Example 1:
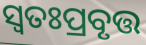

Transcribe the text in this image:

ସ୍ୱତଃପ୍ରବୃତ୍ତ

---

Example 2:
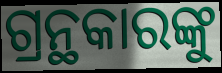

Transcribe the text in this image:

ଗ୍ରନ୍ଥକାରଙ୍କୁ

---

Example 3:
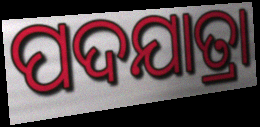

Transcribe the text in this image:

ପଦଯାତ୍ରା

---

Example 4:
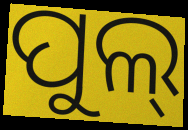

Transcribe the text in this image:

ପୁଲ୍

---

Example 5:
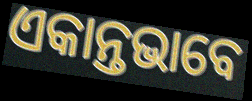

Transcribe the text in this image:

ଏକାନ୍ତଭାବେ